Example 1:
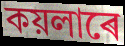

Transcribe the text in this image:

কয়লাৰে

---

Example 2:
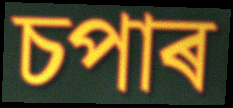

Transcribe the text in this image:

চপাৰ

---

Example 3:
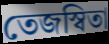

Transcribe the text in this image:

তেজস্বিতা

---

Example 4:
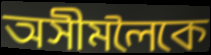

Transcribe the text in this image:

অসীমলৈকে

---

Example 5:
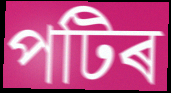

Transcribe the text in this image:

পটিৰ